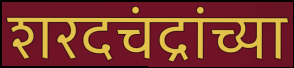
शरदचंद्रांच्या